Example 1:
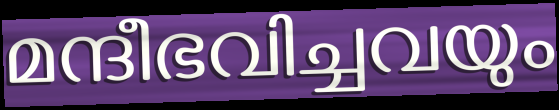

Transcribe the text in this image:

മന്ദീഭവിച്ചവയും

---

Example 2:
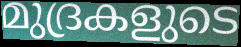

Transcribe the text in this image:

മുദ്രകളുടെ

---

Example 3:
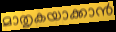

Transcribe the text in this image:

മാതൃകയാക്കാൻ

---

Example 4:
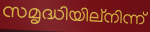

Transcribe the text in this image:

സമൃദ്ധിയില്നിന്ന്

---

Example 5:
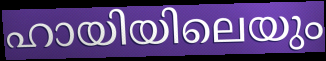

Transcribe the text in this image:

ഹായിയിലെയും